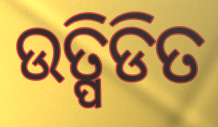
ଉତ୍ପିଡିତ